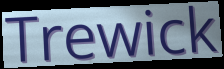
Trewick